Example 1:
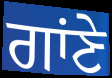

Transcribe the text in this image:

ਗਾਂਣੇ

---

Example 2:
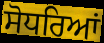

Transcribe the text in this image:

ਸੋਧਰਿਆਂ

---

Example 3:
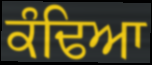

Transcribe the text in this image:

ਕੰਢਿਆ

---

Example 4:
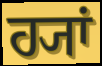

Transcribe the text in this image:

ਹ੍ਯਾਂ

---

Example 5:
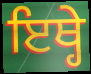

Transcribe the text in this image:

ਇਥ੍ਹੇ